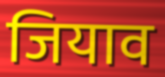
जियाव